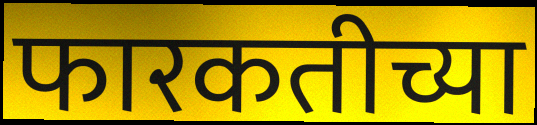
फारकतीच्या